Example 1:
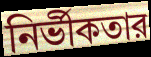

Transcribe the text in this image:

নির্ভীকতার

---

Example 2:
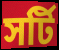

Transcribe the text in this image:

সর্টি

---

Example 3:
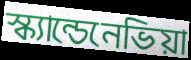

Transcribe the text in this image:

স্ক্যান্ডেনেভিয়া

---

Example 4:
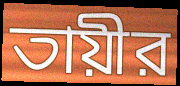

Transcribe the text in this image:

তায়ীর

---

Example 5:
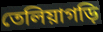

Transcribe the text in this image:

তেলিয়াগড়ি